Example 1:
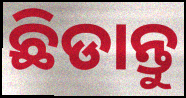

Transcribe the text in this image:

ଛିଡାନ୍ତୁ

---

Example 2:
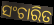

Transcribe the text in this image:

ସଂଚାରିତ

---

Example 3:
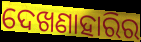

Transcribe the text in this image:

ଦେଖଣାହାରିର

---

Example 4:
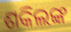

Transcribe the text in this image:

ଶକିଲଙ୍କ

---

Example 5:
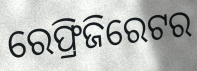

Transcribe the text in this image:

ରେଫ୍ରିଜିରେଟର